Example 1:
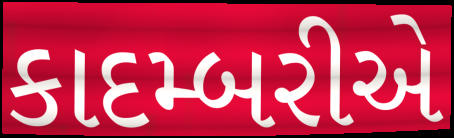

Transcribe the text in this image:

કાદમ્બરીએ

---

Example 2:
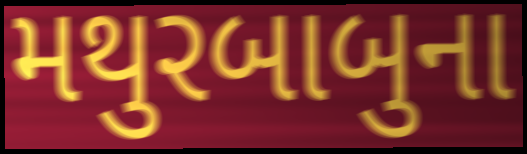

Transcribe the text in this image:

મથુરબાબુના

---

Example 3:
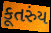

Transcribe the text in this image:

કૂતરુંય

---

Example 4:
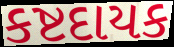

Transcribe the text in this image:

કષ્ટદાયક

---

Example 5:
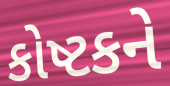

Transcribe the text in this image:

કોષ્ટકને